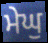
ਮੇਘੁ